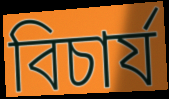
বিচাৰ্য